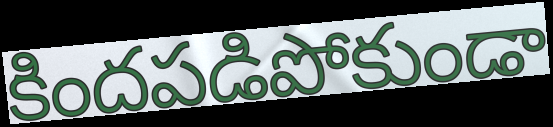
కిందపడిపోకుండా